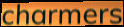
charmers